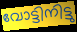
വോട്ടിനിട്ടു